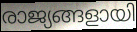
രാജ്യങ്ങളായി